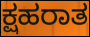
ಕ್ಷಹರಾತ